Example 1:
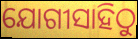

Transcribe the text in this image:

ଯୋଗୀସାହିଠୁ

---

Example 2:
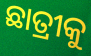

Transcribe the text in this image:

ଛାତ୍ରୀକୁ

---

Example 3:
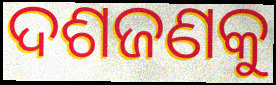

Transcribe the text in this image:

ଦଶଜଣକୁ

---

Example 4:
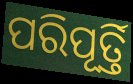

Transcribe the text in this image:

ପରିପୂର୍ତ୍ତି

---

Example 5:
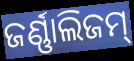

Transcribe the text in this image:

ଜର୍ଣ୍ଣାଲିଜମ୍